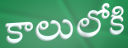
కాలులోకి